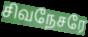
சிவநேசரே